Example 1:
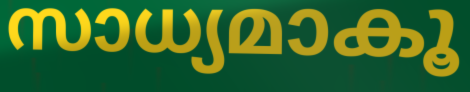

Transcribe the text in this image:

സാധ്യമാകൂ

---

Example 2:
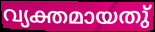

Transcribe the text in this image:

വ്യക്തമായതു്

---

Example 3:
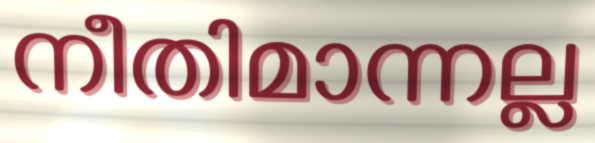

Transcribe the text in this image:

നീതിമാന്നല്ല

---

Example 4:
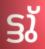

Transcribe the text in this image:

ട്ടു്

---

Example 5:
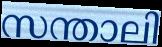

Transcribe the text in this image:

സന്താലി